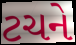
ટચને